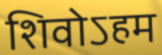
शिवोऽहम